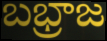
బభ్రాజ